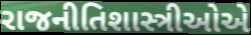
રાજનીતિશાસ્ત્રીઓએ